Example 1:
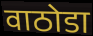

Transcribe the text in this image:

वाठोडा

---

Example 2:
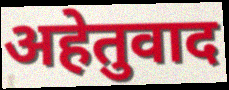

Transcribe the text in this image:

अहेतुवाद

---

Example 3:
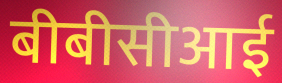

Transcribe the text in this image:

बीबीसीआई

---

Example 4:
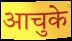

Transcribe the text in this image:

आचुके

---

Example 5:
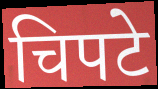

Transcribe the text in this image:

चिपटे